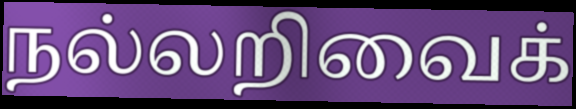
நல்லறிவைக்